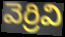
వెర్రివి